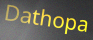
Dathopa